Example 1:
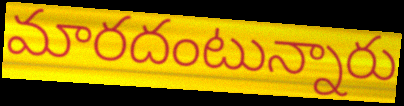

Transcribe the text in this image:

మారదంటున్నారు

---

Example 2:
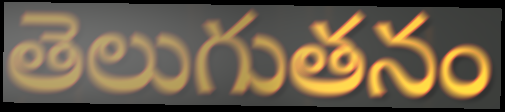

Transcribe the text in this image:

తెలుగుతనం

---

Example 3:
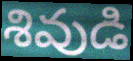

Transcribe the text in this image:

శివుడి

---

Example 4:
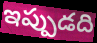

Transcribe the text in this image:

ఇప్పుడది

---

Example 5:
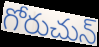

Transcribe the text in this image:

గోరుచున్